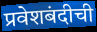
प्रवेशबंदीची